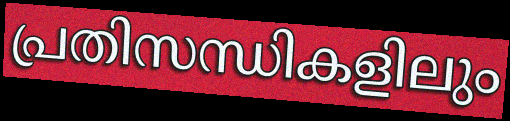
പ്രതിസന്ധികളിലും